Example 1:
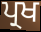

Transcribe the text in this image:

ਪ੍ਰਖ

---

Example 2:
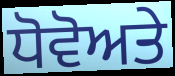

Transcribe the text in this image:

ਧੋਵੋਅਤੇ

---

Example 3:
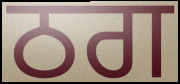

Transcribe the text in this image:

ਠਗ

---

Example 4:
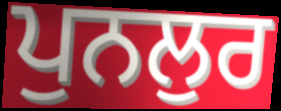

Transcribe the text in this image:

ਪੁਨਲੁਰ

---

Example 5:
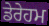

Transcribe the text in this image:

ਡੇਰੇਹਮ